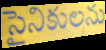
సైనికులను